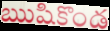
ఋషికొండ